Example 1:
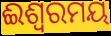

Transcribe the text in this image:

ଈଶ୍ଵରମୟ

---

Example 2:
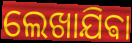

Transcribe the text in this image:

ଲେଖାଯିଵା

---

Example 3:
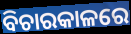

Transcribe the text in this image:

ବିଚାରକାଳରେ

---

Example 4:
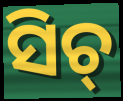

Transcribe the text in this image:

ସିଚ୍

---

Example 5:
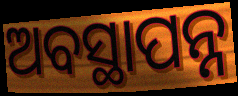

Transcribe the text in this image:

ଅବସ୍ଥାପନ୍ନ